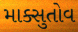
માક્સુતોવ